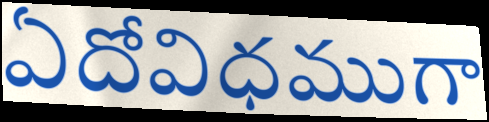
ఏదోవిధముగా